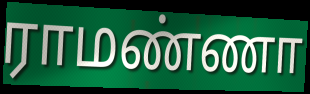
ராமண்ணா